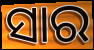
ସାର